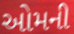
ઓમની